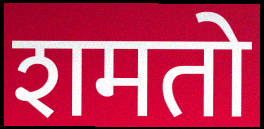
शमतो